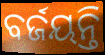
ବର୍ଜୟନ୍ତି